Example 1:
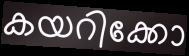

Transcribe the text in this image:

കയറിക്കോ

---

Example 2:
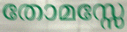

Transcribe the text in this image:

തോമസ്സേ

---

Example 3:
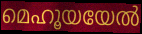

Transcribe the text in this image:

മെഹൂയയേൽ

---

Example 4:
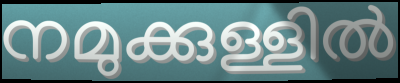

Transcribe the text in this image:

നമുക്കുള്ളിൽ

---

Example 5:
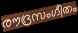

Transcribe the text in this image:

രൗദ്രസംഗീതം